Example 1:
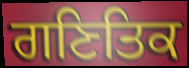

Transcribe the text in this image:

ਗਣਿਤਿਕ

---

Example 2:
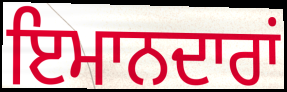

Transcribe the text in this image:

ਇਮਾਨਦਾਰਾਂ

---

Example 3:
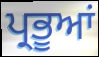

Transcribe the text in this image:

ਪ੍ਰਭੂਆਂ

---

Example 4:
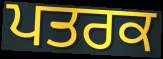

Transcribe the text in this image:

ਪਤਰਕ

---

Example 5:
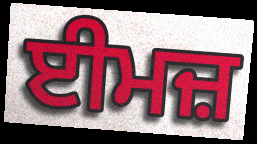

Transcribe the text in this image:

ਈਮਜ਼